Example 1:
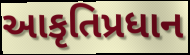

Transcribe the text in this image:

આકૃતિપ્રધાન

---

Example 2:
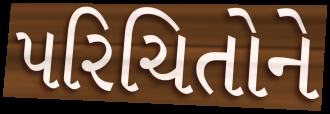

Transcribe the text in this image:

પરિચિતોને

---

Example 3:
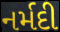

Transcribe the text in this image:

નર્મદી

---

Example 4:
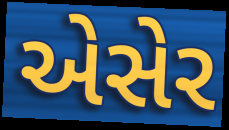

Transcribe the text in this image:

એસેર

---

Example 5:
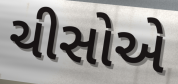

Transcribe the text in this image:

ચીસોએ